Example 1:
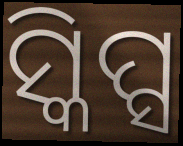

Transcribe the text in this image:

ସ୍କିପ୍ସ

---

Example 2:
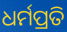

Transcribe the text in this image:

ଧର୍ମପ୍ରତି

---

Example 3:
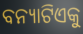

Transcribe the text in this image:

ବନ୍ୟାଟିଏକୁ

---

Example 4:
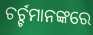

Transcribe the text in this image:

ଚର୍ଚ୍ଚମାନଙ୍କରେ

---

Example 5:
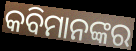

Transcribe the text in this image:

କବିମାନଙ୍କର